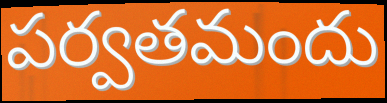
పర్వతమందు